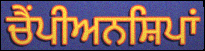
ਚੈਂਪੀਅਨਸ਼ਿਪਾਂ